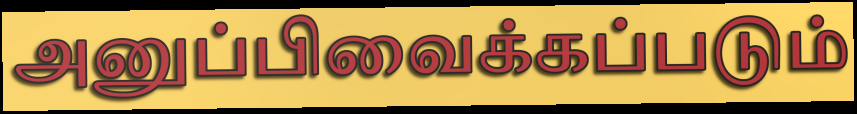
அனுப்பிவைக்கப்படும்